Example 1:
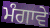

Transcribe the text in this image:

ਮੰਗਾਵੇ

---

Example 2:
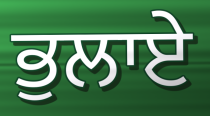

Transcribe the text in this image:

ਭੁਲਾਏ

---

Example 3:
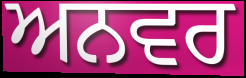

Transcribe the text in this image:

ਅਨਵਰ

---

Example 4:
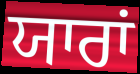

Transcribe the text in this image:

ਯਾਰਾਂ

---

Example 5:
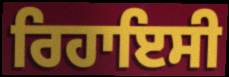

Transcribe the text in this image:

ਰਿਹਾਇਸੀ